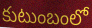
కుటుంబంలో